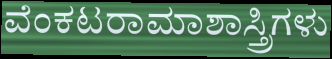
ವೆಂಕಟರಾಮಾಶಾಸ್ತ್ರಿಗಳು